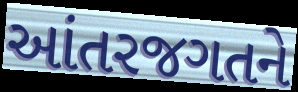
આંતરજગતને